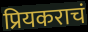
प्रियकराचं